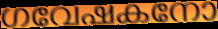
ഗവേഷകനോ